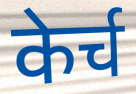
केर्च